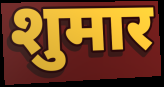
शुमार